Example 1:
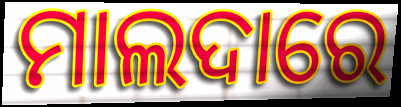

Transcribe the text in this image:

ମାଲଦାରେ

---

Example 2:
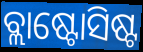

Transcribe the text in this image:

ବ୍ଲାଷ୍ଟୋସିଷ୍ଟ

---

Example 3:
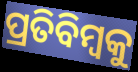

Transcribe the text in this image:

ପ୍ରତିବିମ୍ୱକୁ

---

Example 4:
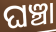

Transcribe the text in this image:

ଘଞ୍ଚା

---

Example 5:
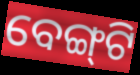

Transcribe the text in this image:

ବେଙ୍ଗ୍‌ଟି